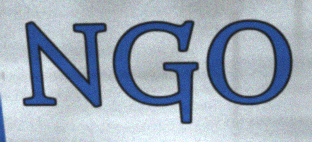
NGO